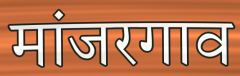
मांजरगाव